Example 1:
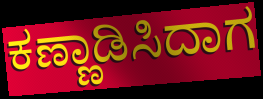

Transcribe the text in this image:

ಕಣ್ಣಾಡಿಸಿದಾಗ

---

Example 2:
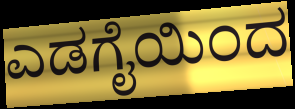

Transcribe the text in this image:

ಎಡಗೈಯಿಂದ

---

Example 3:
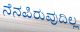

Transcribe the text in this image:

ನೆನಪಿರುವುದಿಲ್ಲ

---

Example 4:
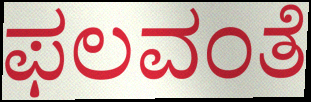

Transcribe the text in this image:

ಫಲವಂತೆ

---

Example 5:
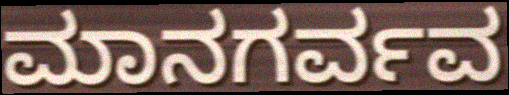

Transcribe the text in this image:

ಮಾನಗರ್ವವ